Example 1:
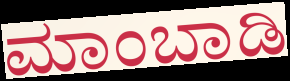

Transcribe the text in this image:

ಮಾಂಬಾಡಿ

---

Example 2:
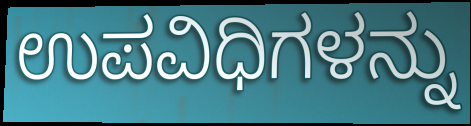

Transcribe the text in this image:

ಉಪವಿಧಿಗಳನ್ನು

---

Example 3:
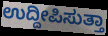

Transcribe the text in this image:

ಉದ್ದೀಪಿಸುತ್ತಾ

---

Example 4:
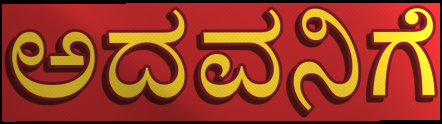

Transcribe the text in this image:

ಅದವನಿಗೆ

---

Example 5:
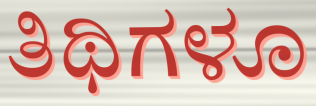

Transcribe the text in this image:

ತಿಥಿಗಳೂ